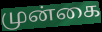
முன்கை